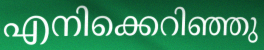
എനിക്കെറിഞ്ഞു